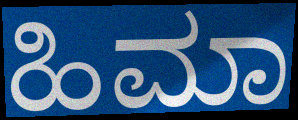
ಹಿಮಾ